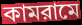
কামরামে